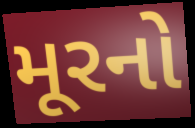
મૂરનો